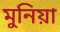
মুনিয়া